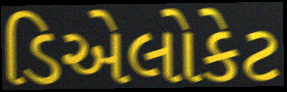
ડિએલોકેટ